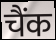
चैंक